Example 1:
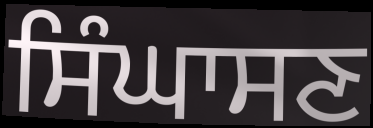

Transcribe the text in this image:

ਸਿੰਘਾਸਣ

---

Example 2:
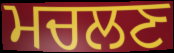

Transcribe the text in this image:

ਮਚਲਣ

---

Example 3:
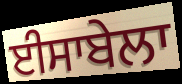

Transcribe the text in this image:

ਈਸਾਬੇਲਾ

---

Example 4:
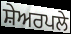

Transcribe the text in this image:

ਸ਼ੇਅਰਪਲੇ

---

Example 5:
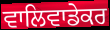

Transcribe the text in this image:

ਵਾਲਿਵਾਡੇਕਰ